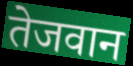
तेजवान